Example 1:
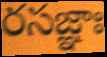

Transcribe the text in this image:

రసజ్ఞాః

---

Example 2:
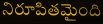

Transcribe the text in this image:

నిరూపితమైంది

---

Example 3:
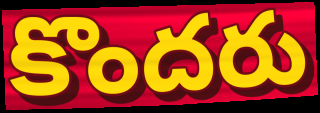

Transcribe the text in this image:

కొందరు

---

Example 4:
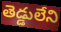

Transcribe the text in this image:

తెడ్డులేని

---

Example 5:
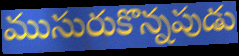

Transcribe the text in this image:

ముసురుకొన్నపుడు